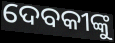
ଦେବକୀଙ୍କୁ